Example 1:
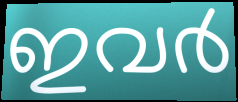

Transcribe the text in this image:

ഇവർ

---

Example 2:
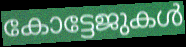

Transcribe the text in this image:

കോട്ടേജുകൾ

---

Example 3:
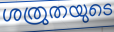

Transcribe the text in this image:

ശത്രുതയുടെ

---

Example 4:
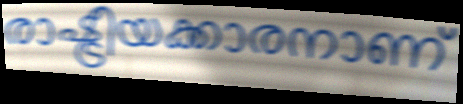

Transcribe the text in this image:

രാഷ്ട്രീയക്കാരനാണ്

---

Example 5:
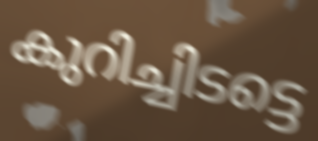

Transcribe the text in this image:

കുറിച്ചിടട്ടെ